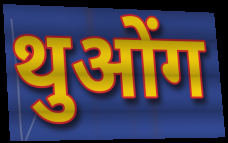
थुओंग